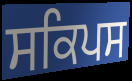
ਸਕਿਪਸ